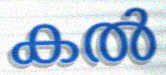
കൽ